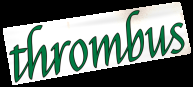
thrombus